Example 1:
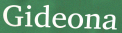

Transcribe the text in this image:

Gideona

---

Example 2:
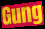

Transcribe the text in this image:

Gung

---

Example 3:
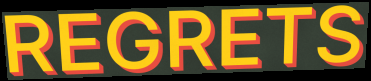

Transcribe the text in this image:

REGRETS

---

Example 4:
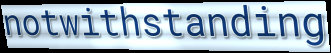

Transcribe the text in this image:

notwithstanding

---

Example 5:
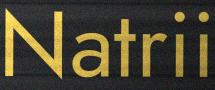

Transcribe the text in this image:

Natrii